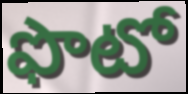
ఫొటో